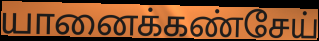
யானைக்கண்சேய்